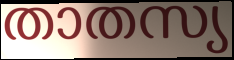
താതസ്യ